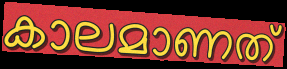
കാലമാണത്